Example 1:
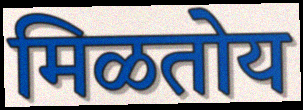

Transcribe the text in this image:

मिळतोय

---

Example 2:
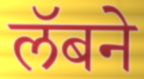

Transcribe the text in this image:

लॅबने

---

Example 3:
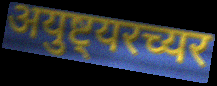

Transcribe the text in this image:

अयुष्ट्यरच्यर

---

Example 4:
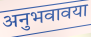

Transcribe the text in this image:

अनुभवावया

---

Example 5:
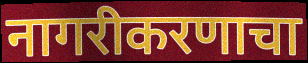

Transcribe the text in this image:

नागरीकरणाचा